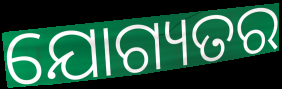
ଯୋଗ୍ୟତର